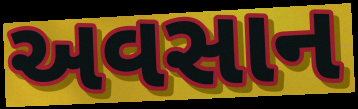
અવસાન